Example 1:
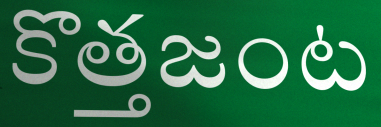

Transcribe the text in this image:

కొత్తజంట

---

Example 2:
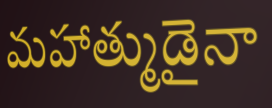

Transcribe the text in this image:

మహాత్ముడైనా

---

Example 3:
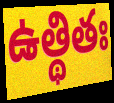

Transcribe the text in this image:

ఉత్థితః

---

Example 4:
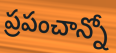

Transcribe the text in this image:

ప్రపంచాన్నో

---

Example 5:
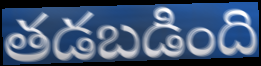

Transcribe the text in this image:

తడబడింది